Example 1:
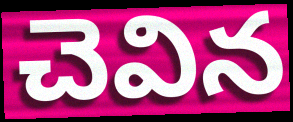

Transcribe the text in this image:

చెవిన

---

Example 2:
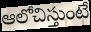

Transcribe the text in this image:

ఆలోచిస్తుంటే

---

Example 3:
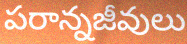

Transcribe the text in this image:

పరాన్నజీవులు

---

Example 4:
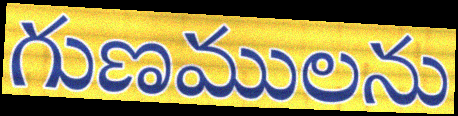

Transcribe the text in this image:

గుణములను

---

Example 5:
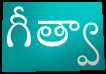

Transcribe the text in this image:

గీత్వా